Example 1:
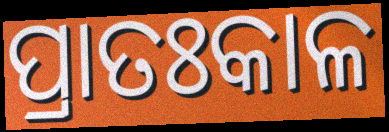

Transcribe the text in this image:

ପ୍ରାତଃକାଳ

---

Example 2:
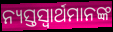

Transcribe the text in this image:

ନ୍ୟସ୍ତସ୍ଵାର୍ଥମାନଙ୍କ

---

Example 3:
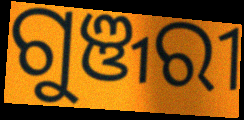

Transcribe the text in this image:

ଗୁଞ୍ଜରୀ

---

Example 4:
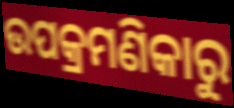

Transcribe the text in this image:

ଉପକ୍ରମଣିକାରୁ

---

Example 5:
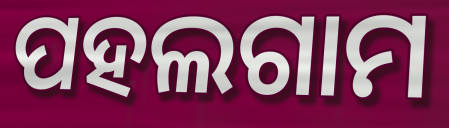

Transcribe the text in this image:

ପହଲଗାମ